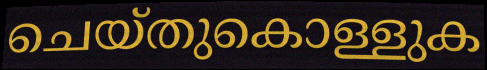
ചെയ്തുകൊള്ളുക